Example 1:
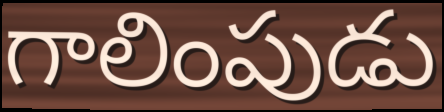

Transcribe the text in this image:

గాలింపుడు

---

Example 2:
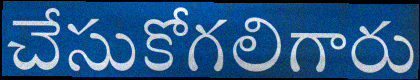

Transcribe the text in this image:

చేసుకోగలిగారు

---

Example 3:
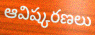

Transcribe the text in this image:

ఆవిష్కరణలు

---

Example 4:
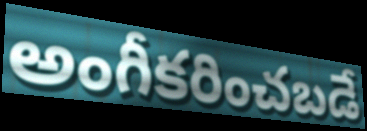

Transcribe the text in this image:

అంగీకరించబడే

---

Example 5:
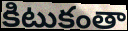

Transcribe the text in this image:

కిటుకంతా